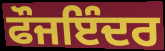
ਫੌਜਇੰਦਰ